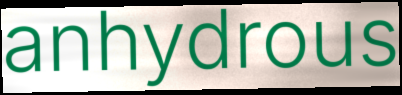
anhydrous